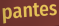
pantes